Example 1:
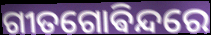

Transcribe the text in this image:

ଗୀତଗୋଵିନ୍ଦରେ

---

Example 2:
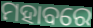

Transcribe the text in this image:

ମହାବରେ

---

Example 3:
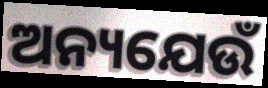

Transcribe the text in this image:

ଅନ୍ୟଯେଉଁ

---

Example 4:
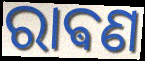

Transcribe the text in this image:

ରାଵଣ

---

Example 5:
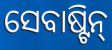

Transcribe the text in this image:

ସେବାଷ୍ଟିନ୍